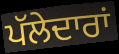
ਪੱਲੇਦਾਰਾਂ